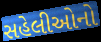
સહેલીઓનો